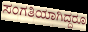
ಸಂಗತಿಯಾಗಿದ್ದರೂ